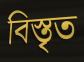
বিস্তৃত